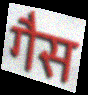
गैस